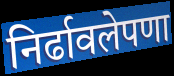
निर्ढावलेपणा